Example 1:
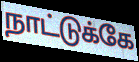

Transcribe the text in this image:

நாட்டுக்கே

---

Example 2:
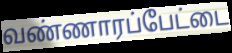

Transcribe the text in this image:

வண்ணாரப்பேட்டை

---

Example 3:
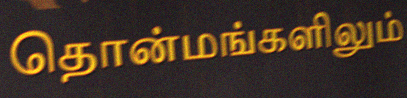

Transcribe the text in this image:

தொன்மங்களிலும்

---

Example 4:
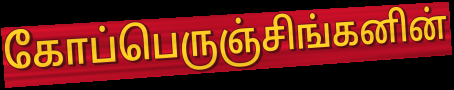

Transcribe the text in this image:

கோப்பெருஞ்சிங்கனின்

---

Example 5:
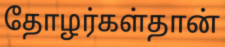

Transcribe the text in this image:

தோழர்கள்தான்